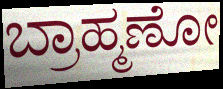
ಬ್ರಾಹ್ಮಣೋ